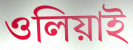
ওলিয়াই